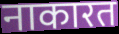
नाकारत